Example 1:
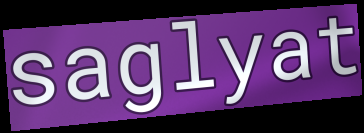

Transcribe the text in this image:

saglyat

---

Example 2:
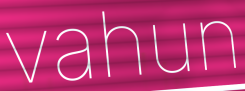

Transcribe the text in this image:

vahun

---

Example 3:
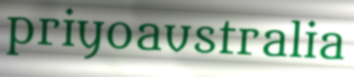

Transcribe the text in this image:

priyoaustralia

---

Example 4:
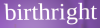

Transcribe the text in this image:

birthright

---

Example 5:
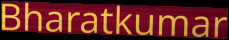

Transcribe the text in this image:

Bharatkumar